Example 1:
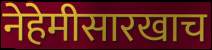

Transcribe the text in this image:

नेहेमीसारखाच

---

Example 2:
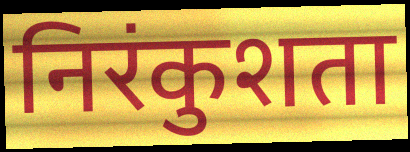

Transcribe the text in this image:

निरंकुशता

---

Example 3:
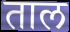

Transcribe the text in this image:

ताल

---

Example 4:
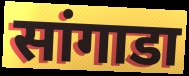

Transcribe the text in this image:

सांगाडा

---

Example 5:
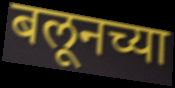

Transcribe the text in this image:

बलूनच्या